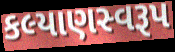
કલ્યાણસ્વરૂપ